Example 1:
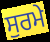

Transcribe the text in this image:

ਸੁਰਮੇ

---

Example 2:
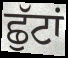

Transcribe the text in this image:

ਛੁੱਟਾਂ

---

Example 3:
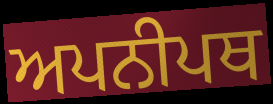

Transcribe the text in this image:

ਅਪਨੀਪਥ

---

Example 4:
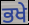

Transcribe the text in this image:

ਭਖੇ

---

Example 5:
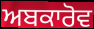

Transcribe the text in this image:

ਅਬਕਾਰੋਵ